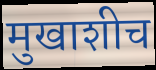
मुखाशीच